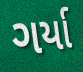
ગર્યા